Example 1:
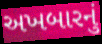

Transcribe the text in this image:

અખબારનું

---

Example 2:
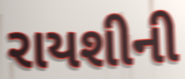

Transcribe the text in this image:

રાયશીની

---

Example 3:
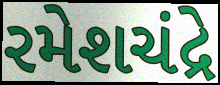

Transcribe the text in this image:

રમેશચંદ્રે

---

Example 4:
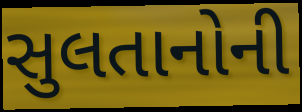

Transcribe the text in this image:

સુલતાનોની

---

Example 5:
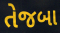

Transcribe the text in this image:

તેજબા